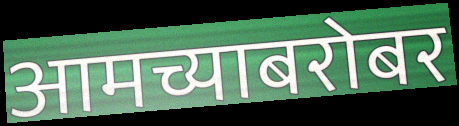
आमच्याबरोबर